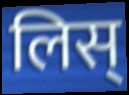
लिस्